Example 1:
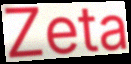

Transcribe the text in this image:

Zeta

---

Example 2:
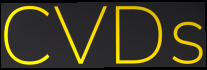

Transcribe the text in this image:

CVDs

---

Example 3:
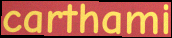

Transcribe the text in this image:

carthami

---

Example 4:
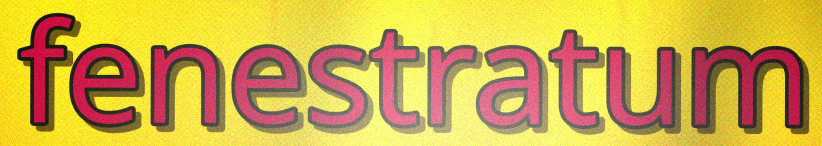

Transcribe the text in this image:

fenestratum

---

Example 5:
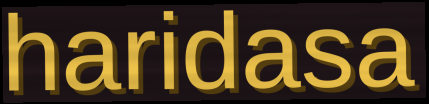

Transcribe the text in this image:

haridasa